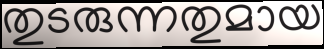
തുടരുന്നതുമായ